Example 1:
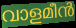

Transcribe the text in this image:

വാളമീൻ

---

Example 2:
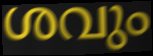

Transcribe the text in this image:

ശവും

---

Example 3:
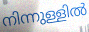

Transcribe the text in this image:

നിന്നുള്ളിൽ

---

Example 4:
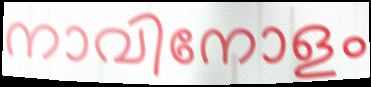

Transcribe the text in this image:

നാവിനോളം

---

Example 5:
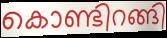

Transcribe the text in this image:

കൊണ്ടിറങ്ങി